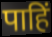
पाहिं